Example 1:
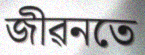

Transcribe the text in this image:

জীৱনতে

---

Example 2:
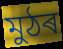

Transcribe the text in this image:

মুঠৰ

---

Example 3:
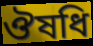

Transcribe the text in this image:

ঔষধি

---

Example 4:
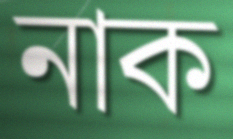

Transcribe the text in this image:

নাক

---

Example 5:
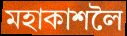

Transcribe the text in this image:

মহাকাশলৈ